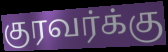
குரவர்க்கு